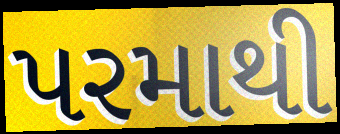
પરમાથી